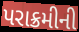
પરાક્રમીની